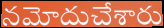
నమోదుచేశారు